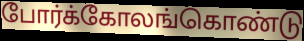
போர்க்கோலங்கொண்டு